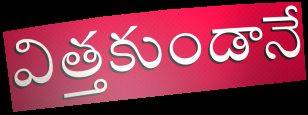
విత్తకుండానే